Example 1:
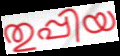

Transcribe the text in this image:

തുപ്പിയ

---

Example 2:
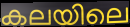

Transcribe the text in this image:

കലയിലെ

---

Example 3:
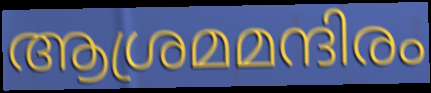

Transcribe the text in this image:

ആശ്രമമന്ദിരം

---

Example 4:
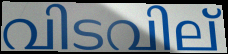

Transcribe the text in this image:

വിടവില്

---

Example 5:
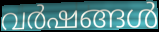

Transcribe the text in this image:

വർഷങ്ങൾ